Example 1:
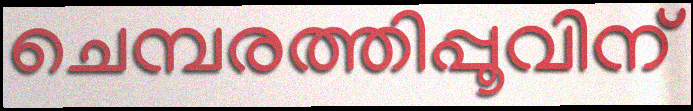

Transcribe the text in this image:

ചെമ്പരത്തിപ്പൂവിന്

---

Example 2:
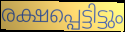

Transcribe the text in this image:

രക്ഷപ്പെട്ടിട്ടും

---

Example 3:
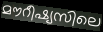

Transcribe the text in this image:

മൗറീഷ്യസിലെ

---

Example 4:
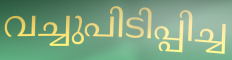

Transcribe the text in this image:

വച്ചുപിടിപ്പിച്ച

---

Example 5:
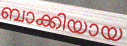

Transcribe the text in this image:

ബാക്കിയായ